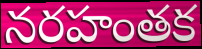
నరహంతక